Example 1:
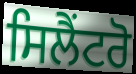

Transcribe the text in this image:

ਸਿਲੈਂਟਰੋ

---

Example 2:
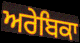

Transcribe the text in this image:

ਅਰੇਬਿਕਾ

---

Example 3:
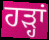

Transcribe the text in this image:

ਹਡ਼੍ਹਾਂ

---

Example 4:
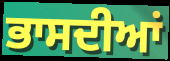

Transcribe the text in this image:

ਭਾਸਦੀਆਂ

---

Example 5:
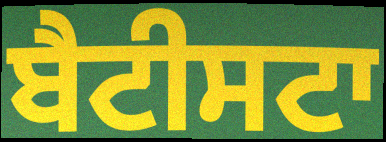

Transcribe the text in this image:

ਬੈਟੀਸਟਾ